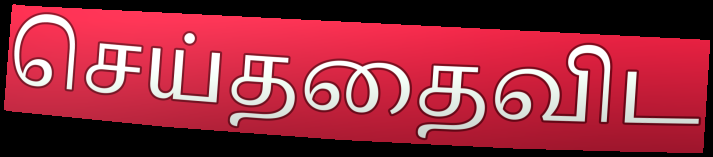
செய்ததைவிட